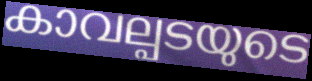
കാവല്പടയുടെ